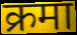
क्रमा